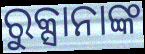
ରୁକ୍ସାନାଙ୍କ